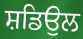
ਸ਼ਡਿਉਲ